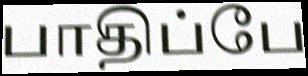
பாதிப்பே